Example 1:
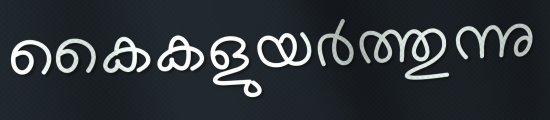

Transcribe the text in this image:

കൈകളുയർത്തുന്നു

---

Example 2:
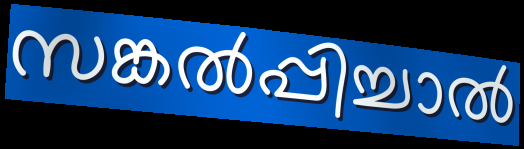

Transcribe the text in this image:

സങ്കൽപ്പിച്ചാൽ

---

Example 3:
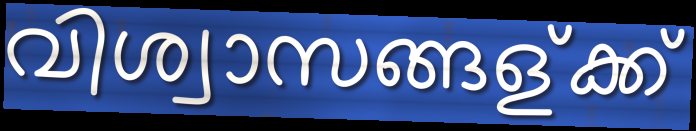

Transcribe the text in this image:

വിശ്വാസങ്ങള്ക്ക്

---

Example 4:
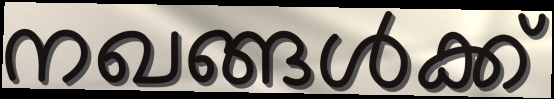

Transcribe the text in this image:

നഖങ്ങൾക്ക്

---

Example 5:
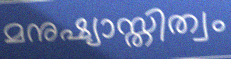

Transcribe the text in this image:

മനുഷ്യാസ്തിത്വം